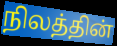
நிலத்தின்